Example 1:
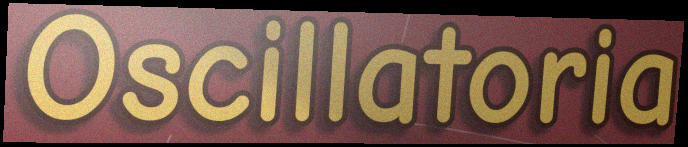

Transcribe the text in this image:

Oscillatoria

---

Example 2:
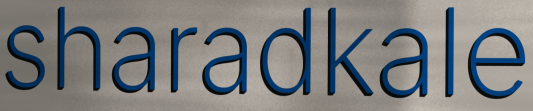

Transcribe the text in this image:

sharadkale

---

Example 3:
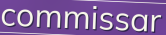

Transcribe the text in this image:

commissar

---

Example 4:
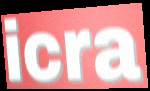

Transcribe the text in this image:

icra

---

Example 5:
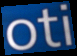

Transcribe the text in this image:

oti